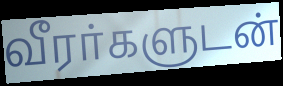
வீரர்களுடன்